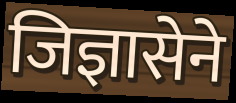
जिज्ञासेने